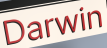
Darwin